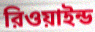
রিওয়াইন্ড